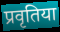
प्रवृतिया